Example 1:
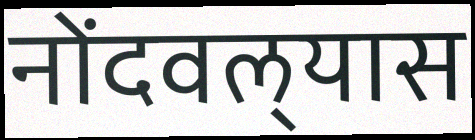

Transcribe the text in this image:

नोंदवल्यास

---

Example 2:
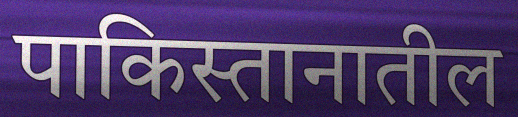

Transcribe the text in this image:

पाकिस्‍तानातील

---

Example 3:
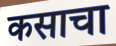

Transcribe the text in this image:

कसाचा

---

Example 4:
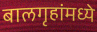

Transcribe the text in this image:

बालगृहांमध्ये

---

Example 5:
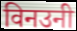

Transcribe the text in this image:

विनउनी